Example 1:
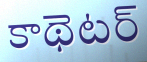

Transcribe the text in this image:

కాథెటర్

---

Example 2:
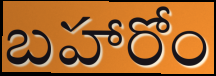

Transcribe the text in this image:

బహారోం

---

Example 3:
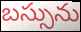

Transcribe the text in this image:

బస్సును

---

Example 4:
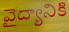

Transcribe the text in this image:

వైద్యానికి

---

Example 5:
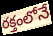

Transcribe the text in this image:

రక్తంలోనే